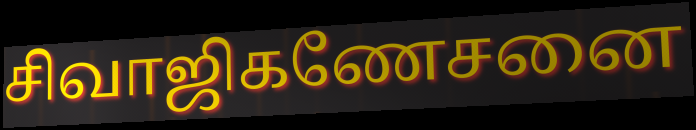
சிவாஜிகணேசனை